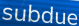
subdue